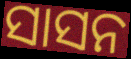
ସାସନ